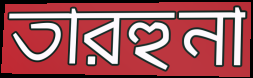
তারহুনা